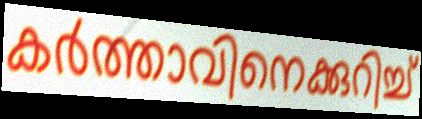
കർത്താവിനെക്കുറിച്ച്